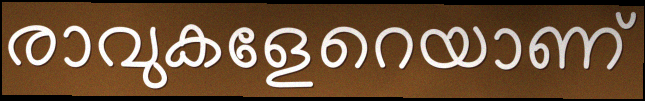
രാവുകളേറെയാണ്